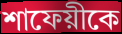
শাফেয়ীকে